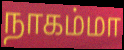
நாகம்மா